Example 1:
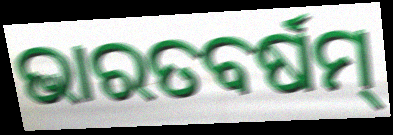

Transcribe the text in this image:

ଭାରତବର୍ଷମ୍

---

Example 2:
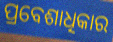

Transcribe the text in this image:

ପ୍ରବେଶାଧିକାର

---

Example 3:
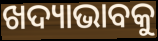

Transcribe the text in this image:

ଖଦ୍ୟାଭାବକୁ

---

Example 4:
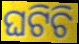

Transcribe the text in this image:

ଘଟିଚି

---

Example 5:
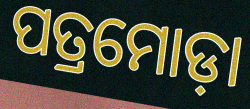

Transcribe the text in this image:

ପତ୍ରମୋଡ଼ା